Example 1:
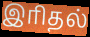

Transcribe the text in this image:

இரிதல்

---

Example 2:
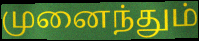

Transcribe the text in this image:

முனைந்தும்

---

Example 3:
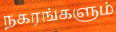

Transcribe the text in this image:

நகரங்களும்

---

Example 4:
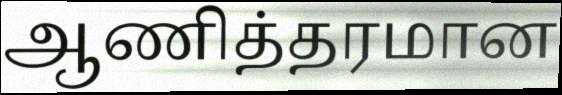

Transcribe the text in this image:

ஆணித்தரமான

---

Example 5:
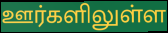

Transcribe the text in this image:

ஊர்களிலுள்ள